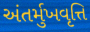
અંતર્મુખવૃત્તિ